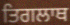
ਤਿਗਲਾਥ